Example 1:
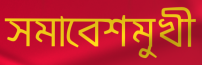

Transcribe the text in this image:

সমাবেশমুখী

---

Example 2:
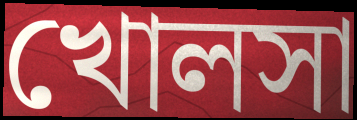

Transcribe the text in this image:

খোলসা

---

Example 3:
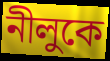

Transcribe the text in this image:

নীলুকে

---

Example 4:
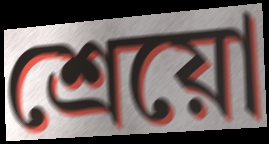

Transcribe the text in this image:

শ্রেয়ো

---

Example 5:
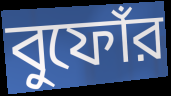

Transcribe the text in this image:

বুফোঁর